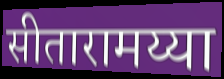
सीतारामय्या